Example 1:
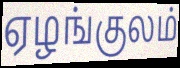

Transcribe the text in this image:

ஏழங்குலம்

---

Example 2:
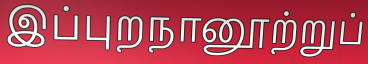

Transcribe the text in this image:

இப்புறநானூற்றுப்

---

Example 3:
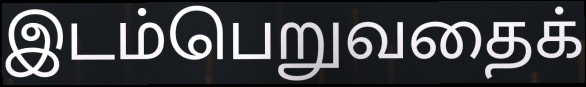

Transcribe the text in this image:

இடம்பெறுவதைக்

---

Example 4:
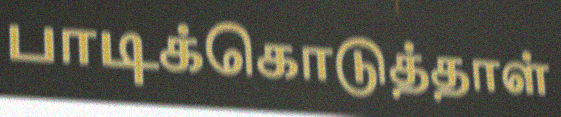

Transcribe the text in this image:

பாடிக்கொடுத்தாள்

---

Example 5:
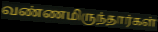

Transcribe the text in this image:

வண்ணமிருந்தார்கள்